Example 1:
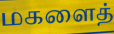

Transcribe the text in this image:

மகளைத்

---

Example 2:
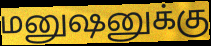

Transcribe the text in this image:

மனுஷனுக்கு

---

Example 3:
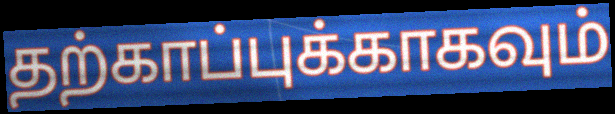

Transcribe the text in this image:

தற்காப்புக்காகவும்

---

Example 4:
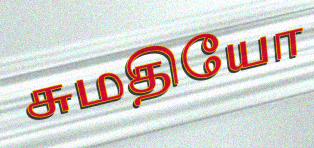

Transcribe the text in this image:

சுமதியோ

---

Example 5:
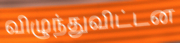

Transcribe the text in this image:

விழுந்துவிட்டன